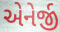
એનેર્જી